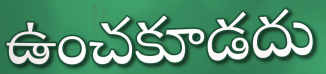
ఉంచకూడదు